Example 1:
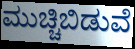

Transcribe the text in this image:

ಮುಚ್ಚಿಬಿಡುವೆ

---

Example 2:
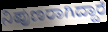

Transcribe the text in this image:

ನಿಪುಣರಾಗಿದ್ದಾರೆ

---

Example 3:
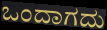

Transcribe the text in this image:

ಒಂದಾಗದು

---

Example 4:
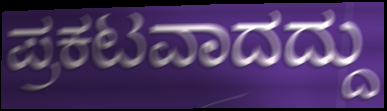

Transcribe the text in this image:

ಪ್ರಕಟವಾದದ್ದು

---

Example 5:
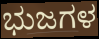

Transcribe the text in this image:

ಭುಜಗಳ